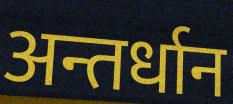
अन्तर्धान